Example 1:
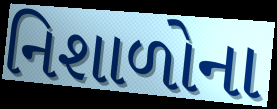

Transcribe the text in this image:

નિશાળોના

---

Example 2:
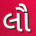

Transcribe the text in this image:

લૌ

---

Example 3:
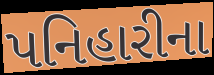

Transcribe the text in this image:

પનિહારીના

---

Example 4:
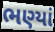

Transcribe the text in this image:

ભણ્યાં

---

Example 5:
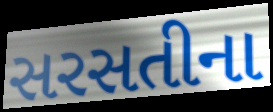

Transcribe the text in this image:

સરસતીના